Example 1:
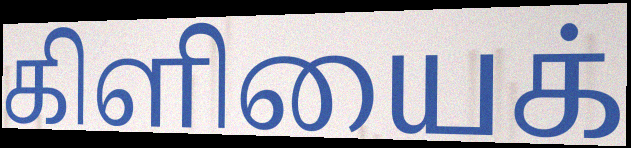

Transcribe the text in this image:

கிளியைக்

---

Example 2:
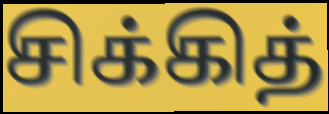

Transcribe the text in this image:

சிக்கித்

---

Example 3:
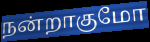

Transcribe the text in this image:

நன்றாகுமோ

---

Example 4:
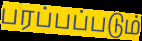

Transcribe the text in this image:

பரப்பப்படும்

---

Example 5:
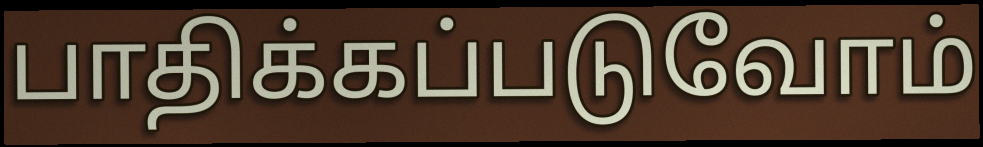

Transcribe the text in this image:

பாதிக்கப்படுவோம்